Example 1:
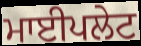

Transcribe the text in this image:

ਮਾਈਪਲੇਟ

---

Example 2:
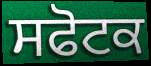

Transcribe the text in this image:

ਸਫੋਟਕ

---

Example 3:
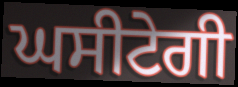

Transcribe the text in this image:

ਘਸੀਟੇਗੀ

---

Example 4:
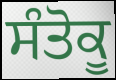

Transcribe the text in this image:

ਸੰਤੋਕੂ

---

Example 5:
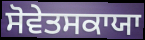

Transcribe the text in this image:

ਸੋਵੇਤਸਕਾਯਾ